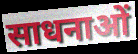
साधनाओं